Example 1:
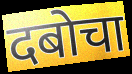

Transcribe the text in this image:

दबोचा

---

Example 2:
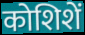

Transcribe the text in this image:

कोशिशें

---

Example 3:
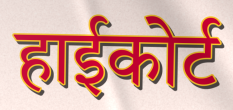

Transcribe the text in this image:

हाईकोर्ट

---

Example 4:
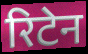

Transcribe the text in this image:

रिटेन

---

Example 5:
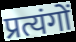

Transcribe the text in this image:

प्रत्यंगों